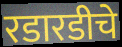
रडारडीचे